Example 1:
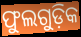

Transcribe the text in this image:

ଫୁଲଗୁଡ଼ିକ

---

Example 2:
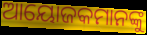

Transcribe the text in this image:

ଆୟୋଜକମାନଙ୍କୁ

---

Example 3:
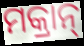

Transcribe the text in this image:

ମକ୍ରାନ୍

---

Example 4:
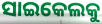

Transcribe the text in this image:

ସାଇକେଲକୁ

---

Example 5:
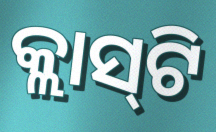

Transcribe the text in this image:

କ୍ଲାସ୍‌ଟି